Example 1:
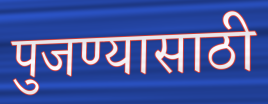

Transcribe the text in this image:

पुजण्यासाठी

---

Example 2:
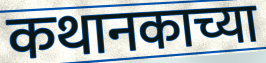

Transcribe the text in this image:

कथानकाच्या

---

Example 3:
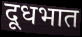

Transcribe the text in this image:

दूधभात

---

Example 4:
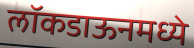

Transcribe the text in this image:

लॉकडाऊनमध्ये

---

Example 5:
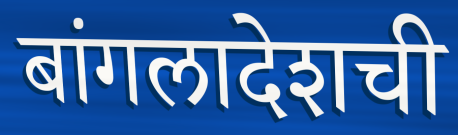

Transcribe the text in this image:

बांगलादेशची